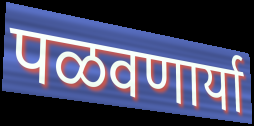
पळवणार्या